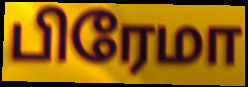
பிரேமா